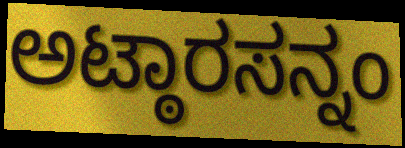
ಅಟ್ಠಾರಸನ್ನಂ